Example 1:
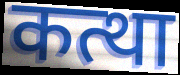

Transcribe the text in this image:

कत्था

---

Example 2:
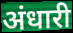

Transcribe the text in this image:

अंधारी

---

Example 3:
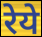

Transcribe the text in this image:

रेये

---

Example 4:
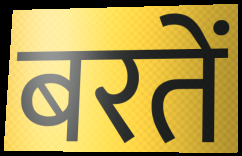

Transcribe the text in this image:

बरतें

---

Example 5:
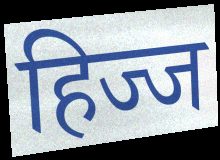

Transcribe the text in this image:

हिज्ज